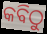
କବିଠୁ